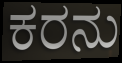
ಕರನು